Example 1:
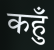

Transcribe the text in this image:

कहुँ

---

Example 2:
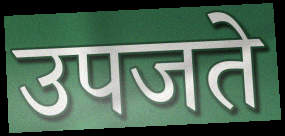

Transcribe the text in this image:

उपजते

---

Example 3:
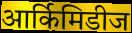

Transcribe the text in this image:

आर्किमिडीज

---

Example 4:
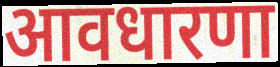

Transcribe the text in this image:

आवधारणा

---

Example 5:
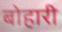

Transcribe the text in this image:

बोहारी